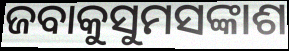
ଜବାକୁସୁମସଙ୍କାଶ